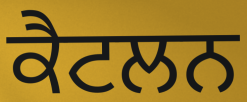
ਕੈਟਲਨ